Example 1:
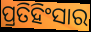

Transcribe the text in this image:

ପ୍ରତିହିଂସାର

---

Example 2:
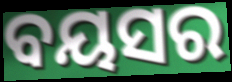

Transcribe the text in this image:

ବୟସର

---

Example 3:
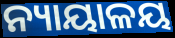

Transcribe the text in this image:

ନ୍ୟାୟାଳୟ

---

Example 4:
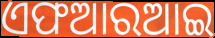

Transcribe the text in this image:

ଏଫଆରଆଇ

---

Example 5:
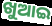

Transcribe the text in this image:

ଖୁଆଇ